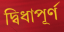
দ্বিধাপূর্ণ